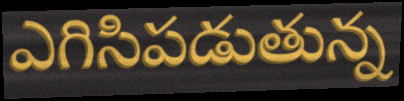
ఎగిసిపడుతున్న